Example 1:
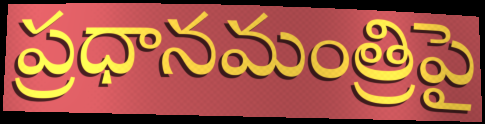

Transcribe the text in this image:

ప్రధానమంత్రిపై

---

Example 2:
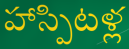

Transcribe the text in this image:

హాస్పిటళ్ల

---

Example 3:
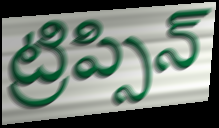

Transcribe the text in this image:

ట్రిప్సిన్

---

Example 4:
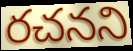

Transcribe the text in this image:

రచనని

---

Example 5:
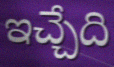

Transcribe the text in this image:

ఇచ్చేది